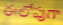
ఈలోపుగా